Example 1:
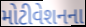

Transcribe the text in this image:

મોટીવેશનના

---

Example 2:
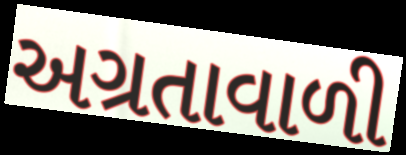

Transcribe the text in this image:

અગ્રતાવાળી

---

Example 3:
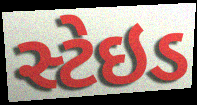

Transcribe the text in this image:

સ્ટેઇડ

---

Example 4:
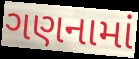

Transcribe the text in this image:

ગણનામાં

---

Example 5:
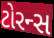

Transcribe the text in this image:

ટોરન્સ